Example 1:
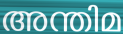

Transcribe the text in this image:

അന്തിമ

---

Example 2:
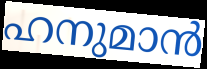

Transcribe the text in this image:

ഹനുമാൻ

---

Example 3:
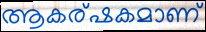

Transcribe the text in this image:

ആകര്ഷകമാണ്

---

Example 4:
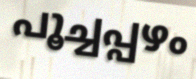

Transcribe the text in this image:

പൂച്ചപ്പഴം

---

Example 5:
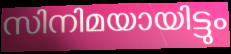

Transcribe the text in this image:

സിനിമയായിട്ടും